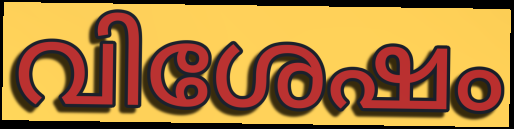
വിശേഷം